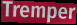
Tremper